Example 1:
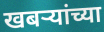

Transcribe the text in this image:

खबऱ्यांच्या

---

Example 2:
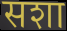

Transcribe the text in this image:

सशा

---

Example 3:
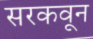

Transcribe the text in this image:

सरकवून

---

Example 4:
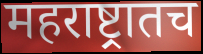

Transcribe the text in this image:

महराष्ट्रातच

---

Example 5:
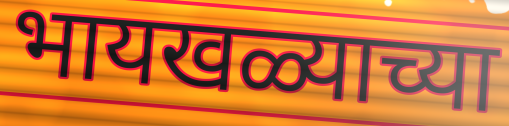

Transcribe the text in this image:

भायखळ्याच्या